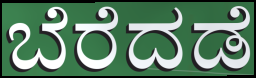
ಬೆರೆದಡೆ